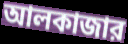
আলকাজার